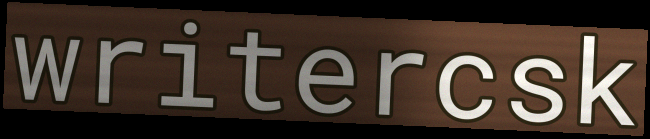
writercsk